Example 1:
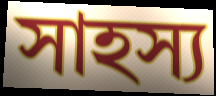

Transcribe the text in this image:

সাহস্য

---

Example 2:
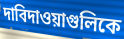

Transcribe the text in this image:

দাবিদাওয়াগুলিকে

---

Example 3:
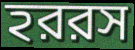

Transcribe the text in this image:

হররস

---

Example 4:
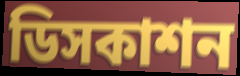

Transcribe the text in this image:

ডিসকাশন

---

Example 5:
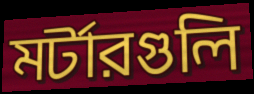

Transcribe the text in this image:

মর্টারগুলি